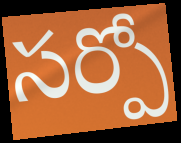
సర్పో